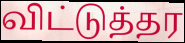
விட்டுத்தர